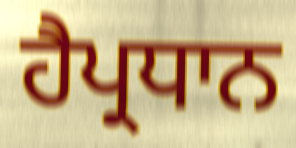
ਹੈਪ੍ਰਧਾਨ